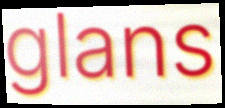
glans